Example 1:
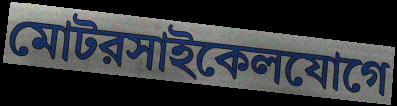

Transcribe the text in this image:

মোটরসাইকেলযোগে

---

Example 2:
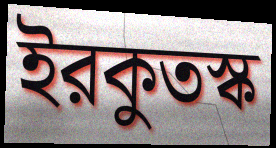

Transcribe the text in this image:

ইরকুতস্ক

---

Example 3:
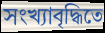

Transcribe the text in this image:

সংখ্যাবৃদ্ধিতে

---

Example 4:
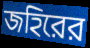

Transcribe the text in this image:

জহিরের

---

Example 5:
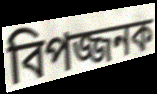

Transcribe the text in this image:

বিপজ্জনক